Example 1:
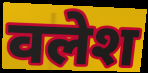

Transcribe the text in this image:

वलेश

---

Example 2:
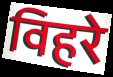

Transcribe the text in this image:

विहरे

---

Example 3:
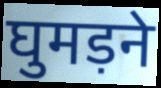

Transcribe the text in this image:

घुमड़ने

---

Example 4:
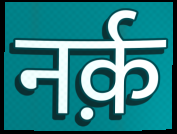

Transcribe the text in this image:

नर्क़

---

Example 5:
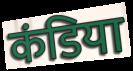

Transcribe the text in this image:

कंडिया